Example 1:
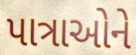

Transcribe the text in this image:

પાત્રાઓને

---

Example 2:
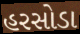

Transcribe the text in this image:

હરસોડા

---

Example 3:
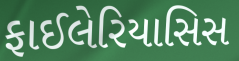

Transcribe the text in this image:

ફાઈલેરિયાસિસ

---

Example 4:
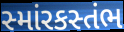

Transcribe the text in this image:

સ્માંરકસ્તંભ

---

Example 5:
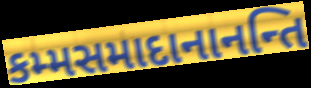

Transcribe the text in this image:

કમ્મસમાદાનાનન્તિ